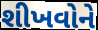
શીખવોને